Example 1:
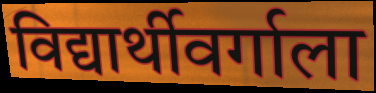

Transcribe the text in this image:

विद्यार्थीवर्गाला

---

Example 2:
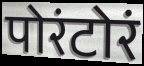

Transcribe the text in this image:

पोरंटोरं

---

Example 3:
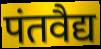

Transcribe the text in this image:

पंतवैद्य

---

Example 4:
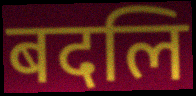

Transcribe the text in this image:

बदलि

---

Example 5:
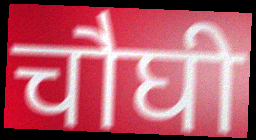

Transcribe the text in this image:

चौघी